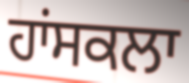
ਹਾਂਸਕਲਾ